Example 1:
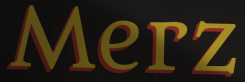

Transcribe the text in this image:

Merz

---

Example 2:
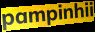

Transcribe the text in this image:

pampinhii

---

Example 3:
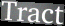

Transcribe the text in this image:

Tract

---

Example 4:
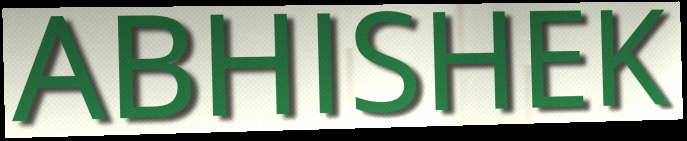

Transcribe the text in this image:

ABHISHEK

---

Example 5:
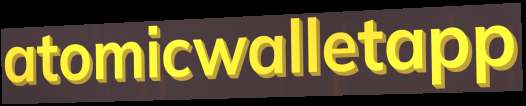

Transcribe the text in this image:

atomicwalletapp